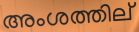
അംശത്തില്